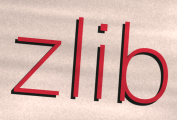
zlib